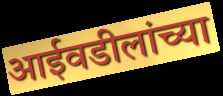
आईवडीलांच्या